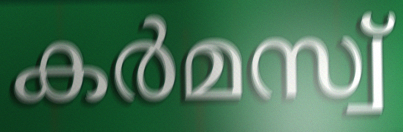
കർമസ്വ്